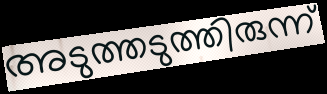
അടുത്തടുത്തിരുന്ന്